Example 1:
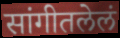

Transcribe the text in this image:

सांगीतलेलं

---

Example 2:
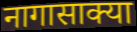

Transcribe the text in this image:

नागासाक्या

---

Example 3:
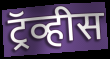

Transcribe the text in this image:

ट्रॅव्हीस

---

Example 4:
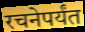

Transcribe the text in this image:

रचनेपर्यंत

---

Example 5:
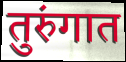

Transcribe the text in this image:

तुरुंगात